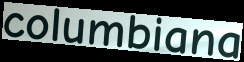
columbiana